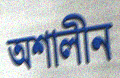
অশালীন